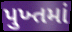
પુખ્તમાં